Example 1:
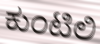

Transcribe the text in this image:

ಕುಂಟಿಲಿ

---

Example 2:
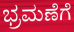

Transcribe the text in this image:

ಭ್ರಮಣೆಗೆ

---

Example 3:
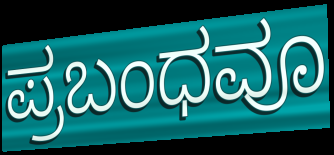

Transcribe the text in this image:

ಪ್ರಬಂಧವೂ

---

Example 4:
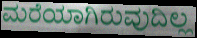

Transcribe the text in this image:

ಮರೆಯಾಗಿರುವುದಿಲ್ಲ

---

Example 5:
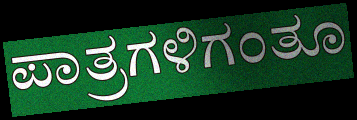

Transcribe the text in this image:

ಪಾತ್ರಗಳಿಗಂತೂ